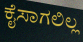
ಕೈಸಾಗಲಿಲ್ಲ